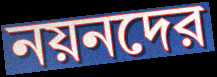
নয়নদের